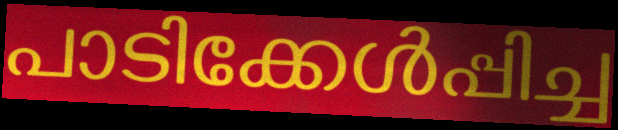
പാടിക്കേൾപ്പിച്ച